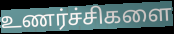
உணர்ச்சிகளை